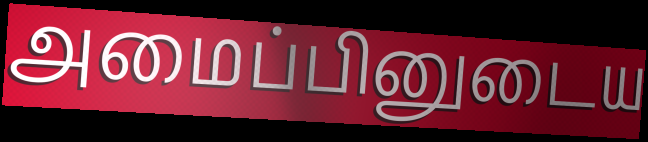
அமைப்பினுடைய